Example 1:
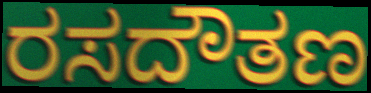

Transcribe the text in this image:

ರಸದೌತಣ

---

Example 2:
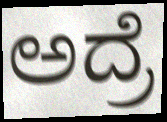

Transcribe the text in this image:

ಅದ್ರೆ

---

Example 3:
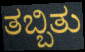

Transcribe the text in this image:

ತಬ್ಬಿತು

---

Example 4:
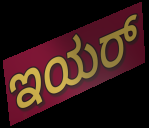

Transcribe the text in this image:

ಇಯರ್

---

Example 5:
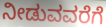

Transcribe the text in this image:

ನೀಡುವವರೆಗೆ